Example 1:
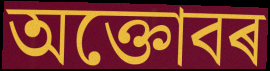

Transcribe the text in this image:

অক্তোবৰ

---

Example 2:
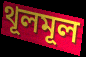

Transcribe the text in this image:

থূলমূল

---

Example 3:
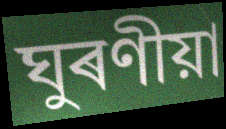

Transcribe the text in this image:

ঘুৰণীয়া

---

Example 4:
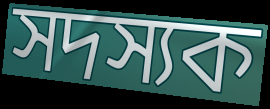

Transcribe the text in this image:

সদস্যক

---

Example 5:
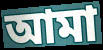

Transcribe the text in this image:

আমা